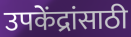
उपकेंद्रांसाठी